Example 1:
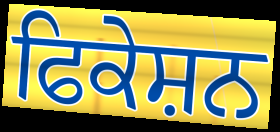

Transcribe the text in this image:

ਫਿਕੇਸ਼ਨ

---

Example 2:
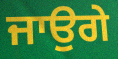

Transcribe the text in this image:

ਜਾਉਗੇ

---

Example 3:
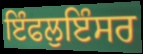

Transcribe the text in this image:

ਇੰਫਲੁਇੰਸਰ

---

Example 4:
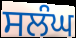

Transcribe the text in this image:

ਸਲੰਘ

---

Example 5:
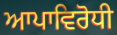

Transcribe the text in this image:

ਆਪਾਵਿਰੋਧੀ